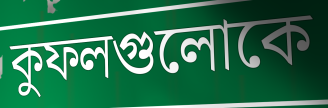
কুফলগুলোকে